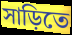
সাড়িতে